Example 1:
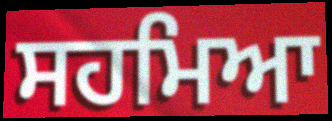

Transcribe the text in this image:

ਸਹਮਿਆ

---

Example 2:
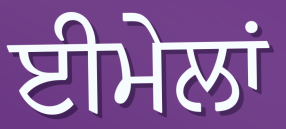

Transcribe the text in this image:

ਈਮੇਲਾਂ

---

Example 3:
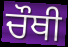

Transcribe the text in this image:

ਚੌਥੀ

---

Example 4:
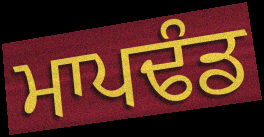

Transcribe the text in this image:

ਮਾਪਢੰਡ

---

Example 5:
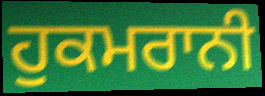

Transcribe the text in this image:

ਹੁਕਮਰਾਨੀ